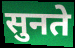
सुनते